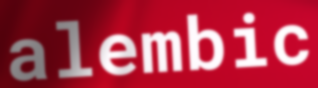
alembic